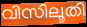
വിസിലൂതി